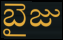
బైజు